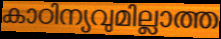
കാഠിന്യവുമില്ലാത്ത